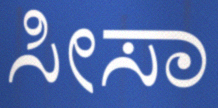
ಸೀಸಾ